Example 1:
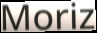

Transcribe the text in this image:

Moriz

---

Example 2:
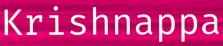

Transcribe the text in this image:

Krishnappa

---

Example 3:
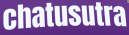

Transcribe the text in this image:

chatusutra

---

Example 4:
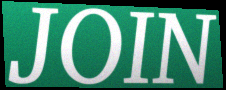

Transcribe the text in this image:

JOIN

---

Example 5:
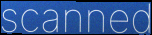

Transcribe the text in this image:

scanned